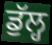
ਡੁੱਲ੍ਹ